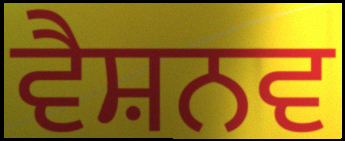
ਵੈਸ਼ਨਵ